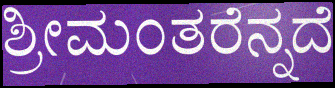
ಶ್ರೀಮಂತರೆನ್ನದೆ